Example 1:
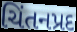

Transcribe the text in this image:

ચિંતનપ્રદ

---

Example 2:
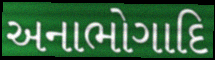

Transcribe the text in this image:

અનાભોગાદિ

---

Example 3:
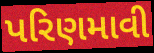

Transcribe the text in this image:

પરિણમાવી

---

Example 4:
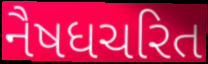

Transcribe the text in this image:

નૈષધચરિત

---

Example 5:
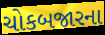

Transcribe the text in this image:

ચોકબજારના